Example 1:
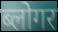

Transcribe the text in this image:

ब्लोगर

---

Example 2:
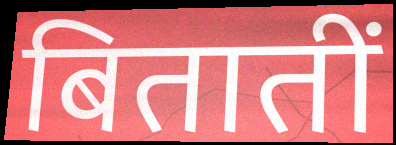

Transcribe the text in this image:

बितातीं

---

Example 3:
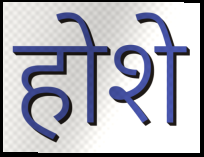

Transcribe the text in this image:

होशे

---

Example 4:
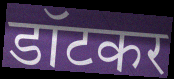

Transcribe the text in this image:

डॉटकर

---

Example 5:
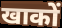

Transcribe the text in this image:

खाकों